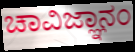
ಚಾವಿಜ್ಞಾನಂ